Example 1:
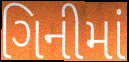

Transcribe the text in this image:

ગિનીમાં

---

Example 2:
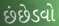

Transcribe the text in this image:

છંછેડવો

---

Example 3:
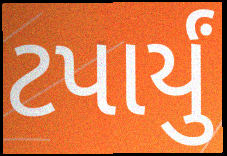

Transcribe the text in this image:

ટપાર્યું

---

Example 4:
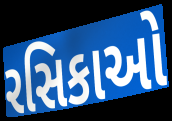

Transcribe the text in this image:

રસિકાઓ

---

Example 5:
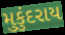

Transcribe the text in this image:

મુકુંદરાય